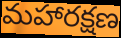
మహారక్షణ